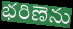
భరిణెను